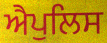
ਐਪੁਲਿਸ